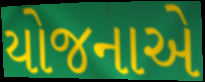
યોજનાએ